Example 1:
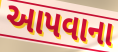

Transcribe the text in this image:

આપવાના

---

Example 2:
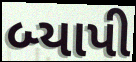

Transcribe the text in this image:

બ્યાપી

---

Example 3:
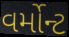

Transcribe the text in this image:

વર્મોન્ટ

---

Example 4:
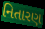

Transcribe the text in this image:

નિતારણ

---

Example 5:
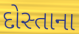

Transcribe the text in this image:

દોસ્તાના